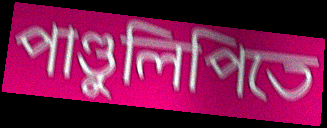
পাণ্ডুলিপিতে